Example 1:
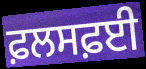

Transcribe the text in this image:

ਫ਼ਲਸਫ਼ਈ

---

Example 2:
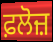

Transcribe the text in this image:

ਫ਼ਲੋਜ਼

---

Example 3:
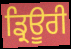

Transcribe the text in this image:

ਡ੍ਰਿਊਰੀ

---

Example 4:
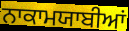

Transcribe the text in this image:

ਨਾਕਾਮਯਾਬੀਆਂ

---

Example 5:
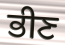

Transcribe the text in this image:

ਭੀਣ